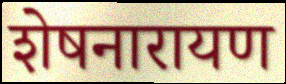
शेषनारायण